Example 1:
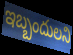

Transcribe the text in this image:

ఇబ్బందులని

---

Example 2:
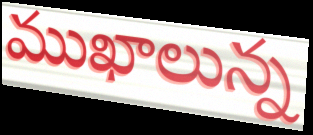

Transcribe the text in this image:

ముఖాలున్న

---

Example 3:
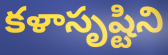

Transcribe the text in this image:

కళాసృష్టిని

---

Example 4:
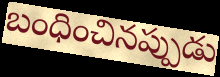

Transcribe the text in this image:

బంధించినప్పుడు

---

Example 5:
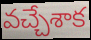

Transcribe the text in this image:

వచ్చేశాక